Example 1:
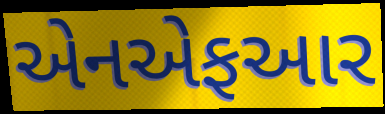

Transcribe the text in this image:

એનએફઆર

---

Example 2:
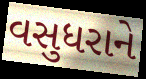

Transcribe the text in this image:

વસુધરાને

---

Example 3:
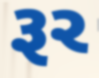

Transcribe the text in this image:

રૂર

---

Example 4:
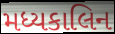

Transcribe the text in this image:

મધ્યકાલિન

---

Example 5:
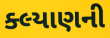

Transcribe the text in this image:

ક્લ્યાણની